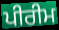
ਪੀਰੀਮ